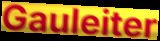
Gauleiter